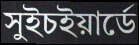
সুইচইয়ার্ডে